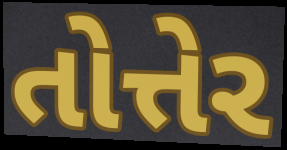
તોત્તેર